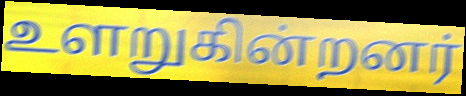
உளறுகின்றனர்